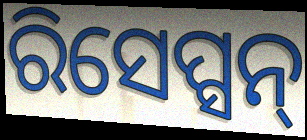
ରିସେପ୍ସନ୍